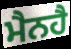
ਮੈਨਹੈ